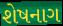
શેષનાગ